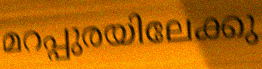
മറപ്പുരയിലേക്കു